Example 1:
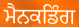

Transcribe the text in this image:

ਮੈਨਕਡਿੰਗ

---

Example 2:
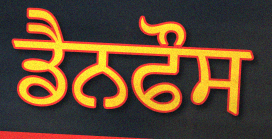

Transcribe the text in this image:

ਡੈਨਫੌਸ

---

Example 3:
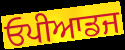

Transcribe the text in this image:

ਓਪੀਆਡਜ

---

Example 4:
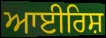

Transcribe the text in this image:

ਆਈਰਿਸ਼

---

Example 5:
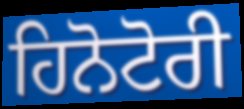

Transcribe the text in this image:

ਹਿਨੋਟੋਰੀ